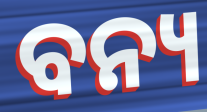
ବନ୍ୟ